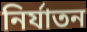
নির্যাতন